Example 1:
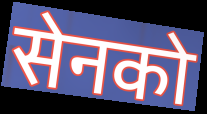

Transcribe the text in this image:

सेनको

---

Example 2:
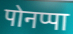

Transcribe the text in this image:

पोनप्पा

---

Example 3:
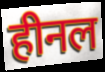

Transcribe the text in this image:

हीनल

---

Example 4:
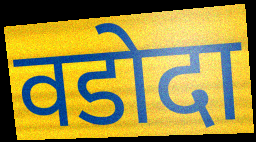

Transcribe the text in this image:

वडोदा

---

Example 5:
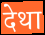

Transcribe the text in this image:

देथा